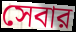
সেবার